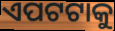
ଏପଟଟାକୁ